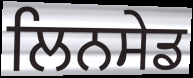
ਲਿਨਸੇਡ